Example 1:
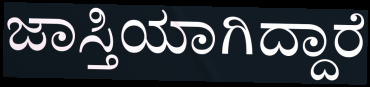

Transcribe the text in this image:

ಜಾಸ್ತಿಯಾಗಿದ್ದಾರೆ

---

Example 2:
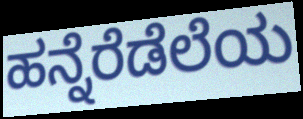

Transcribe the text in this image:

ಹನ್ನೆರೆಡೆಲೆಯ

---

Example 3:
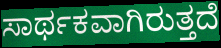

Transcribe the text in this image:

ಸಾರ್ಥಕವಾಗಿರುತ್ತದೆ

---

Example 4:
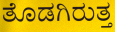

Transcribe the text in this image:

ತೊಡಗಿರುತ್ತ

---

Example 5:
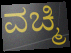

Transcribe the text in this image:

ವಚ್ಮಿ